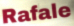
Rafale